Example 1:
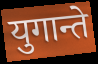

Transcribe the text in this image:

युगान्ते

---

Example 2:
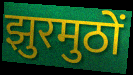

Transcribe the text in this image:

झुरमुठों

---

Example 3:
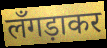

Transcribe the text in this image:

लँगड़ाकर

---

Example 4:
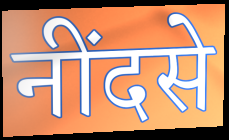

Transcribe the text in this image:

नींदसे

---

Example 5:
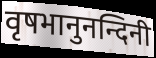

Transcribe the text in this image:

वृषभानुनन्दिनी